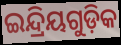
ଇନ୍ଦ୍ରିୟଗୁଡ଼ିକ